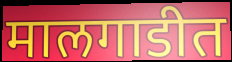
मालगाडीत